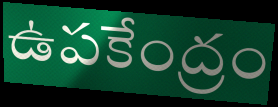
ఉపకేంద్రం